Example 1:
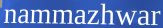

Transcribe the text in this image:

nammazhwar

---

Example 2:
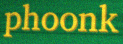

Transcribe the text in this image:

phoonk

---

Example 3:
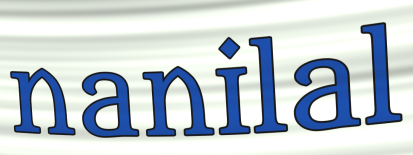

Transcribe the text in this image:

nanilal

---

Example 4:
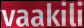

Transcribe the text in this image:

vaakili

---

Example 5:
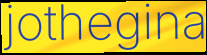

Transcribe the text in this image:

jothegina